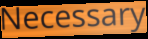
Necessary